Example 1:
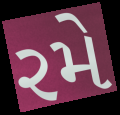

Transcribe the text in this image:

રમે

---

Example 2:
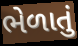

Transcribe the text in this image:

ભેળાતું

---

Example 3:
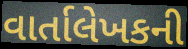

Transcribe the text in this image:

વાર્તાલેખકની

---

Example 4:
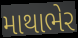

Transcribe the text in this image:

માથાભેર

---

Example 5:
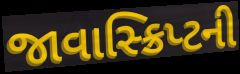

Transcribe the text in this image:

જાવાસ્ક્રિપ્ટની